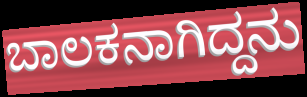
ಬಾಲಕನಾಗಿದ್ದನು